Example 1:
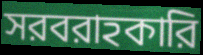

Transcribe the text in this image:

সরবরাহকারি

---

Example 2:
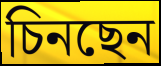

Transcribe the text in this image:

চিনছেন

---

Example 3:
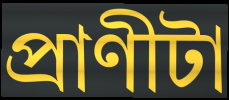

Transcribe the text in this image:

প্রাণীটা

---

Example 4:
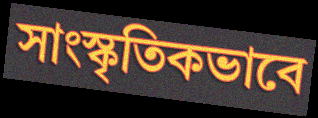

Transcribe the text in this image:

সাংস্কৃতিকভাবে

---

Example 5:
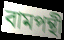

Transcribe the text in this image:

বামপন্থী